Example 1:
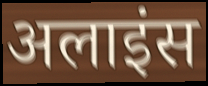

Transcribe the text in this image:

अलाइंस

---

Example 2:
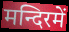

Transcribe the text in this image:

मन्दिरमें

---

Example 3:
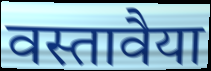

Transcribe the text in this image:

वस्तावैया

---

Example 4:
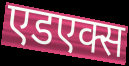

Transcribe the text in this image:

एडएक्स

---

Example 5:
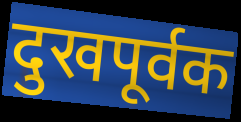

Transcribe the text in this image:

दुखपूर्वक